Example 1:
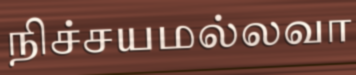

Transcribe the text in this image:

நிச்சயமல்லவா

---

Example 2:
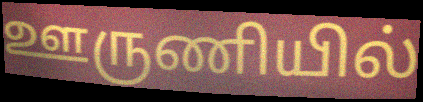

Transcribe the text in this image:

ஊருணியில்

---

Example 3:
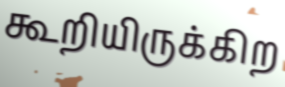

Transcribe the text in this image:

கூறியிருக்கிற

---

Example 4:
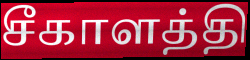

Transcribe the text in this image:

சீகாளத்தி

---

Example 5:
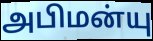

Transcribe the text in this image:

அபிமன்யு